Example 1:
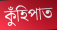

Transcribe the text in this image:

কুঁহিপাত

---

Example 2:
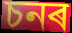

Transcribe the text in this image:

চনৰ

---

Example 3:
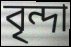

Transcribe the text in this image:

বৃন্দা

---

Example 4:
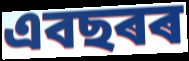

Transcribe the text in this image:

এবছৰৰ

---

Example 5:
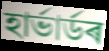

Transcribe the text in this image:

হাৰ্ভাৰ্ডৰ